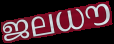
ജലധൗ